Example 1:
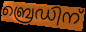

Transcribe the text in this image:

ബ്രെഡിന്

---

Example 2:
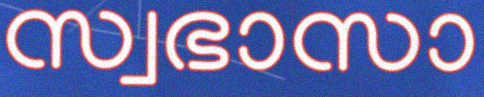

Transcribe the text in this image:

സ്വഭാസാ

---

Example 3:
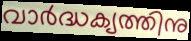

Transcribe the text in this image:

വാർദ്ധക്യത്തിനു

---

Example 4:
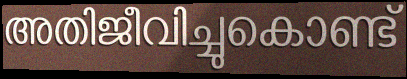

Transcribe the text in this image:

അതിജീവിച്ചുകൊണ്ട്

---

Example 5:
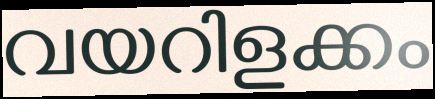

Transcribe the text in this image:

വയറിളക്കം